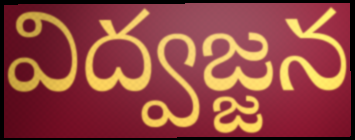
విద్వజ్జన